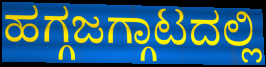
ಹಗ್ಗಜಗ್ಗಾಟದಲ್ಲಿ